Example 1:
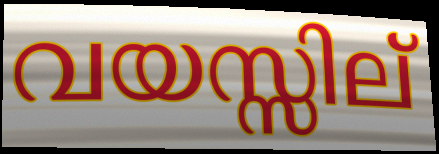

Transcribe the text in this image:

വയസ്സില്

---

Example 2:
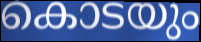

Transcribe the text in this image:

കൊടയും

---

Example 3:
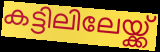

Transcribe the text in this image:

കട്ടിലിലേയ്ക്ക്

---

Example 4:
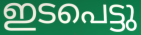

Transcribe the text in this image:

ഇടപെട്ടു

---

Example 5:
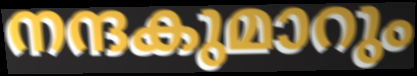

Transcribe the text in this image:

നന്ദകുമാറും